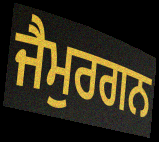
ਜੈਮੁਰਗਨ